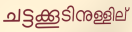
ചട്ടക്കൂടിനുള്ളില്